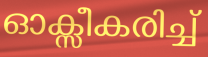
ഓക്സീകരിച്ച്